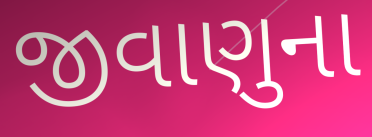
જીવાણુના